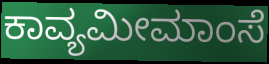
ಕಾವ್ಯಮೀಮಾಂಸೆ